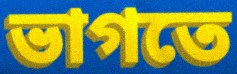
ভাগতে